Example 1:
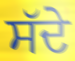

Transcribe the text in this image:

ਸੱਦੇ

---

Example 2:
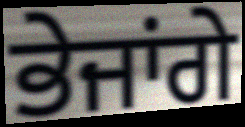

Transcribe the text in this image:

ਭੇਜਾਂਗੇ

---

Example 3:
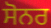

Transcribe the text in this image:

ਸੋਨਰ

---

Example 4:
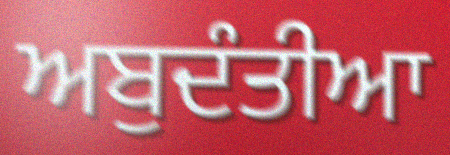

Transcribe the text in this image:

ਅਬੁਦੰਤੀਆ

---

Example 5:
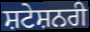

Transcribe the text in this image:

ਸ਼ਟੇਸ਼ਨਰੀ